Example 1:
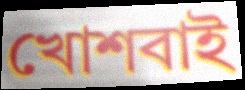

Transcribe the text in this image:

খোশবাই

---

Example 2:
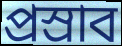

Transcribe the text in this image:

প্রস্রাব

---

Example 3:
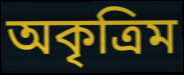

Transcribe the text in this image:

অকৃত্রিম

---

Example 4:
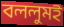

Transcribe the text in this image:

বললুমই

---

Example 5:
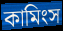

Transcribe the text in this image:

কামিংস